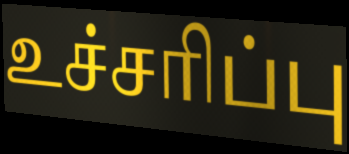
உச்சரிப்பு